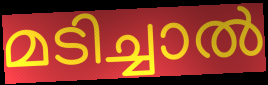
മടിച്ചാൽ